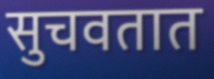
सुचवतात